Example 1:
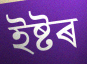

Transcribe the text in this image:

ইষ্টৰ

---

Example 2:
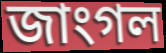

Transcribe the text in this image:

জাংগল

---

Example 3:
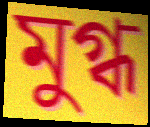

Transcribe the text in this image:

মুগ্ধ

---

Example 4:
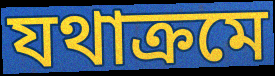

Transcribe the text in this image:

যথাক্ৰমে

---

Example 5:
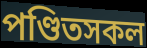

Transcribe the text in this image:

পণ্ডিতসকল